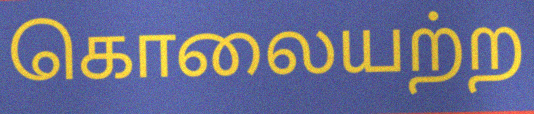
கொலையற்ற